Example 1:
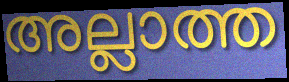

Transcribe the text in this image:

അല്ലാത്ത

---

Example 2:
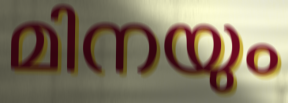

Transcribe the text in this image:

മിനയും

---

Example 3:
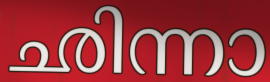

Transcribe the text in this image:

ഛിന്നാ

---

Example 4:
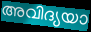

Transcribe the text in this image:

അവിദ്യയാ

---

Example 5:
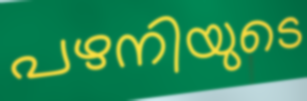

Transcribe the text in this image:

പഴനിയുടെ